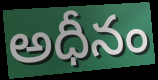
అధీనం